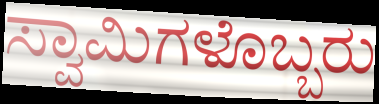
ಸ್ವಾಮಿಗಳೊಬ್ಬರು